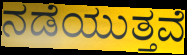
ನಡೆಯುತ್ತವೆ